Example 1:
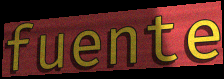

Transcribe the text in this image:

fuente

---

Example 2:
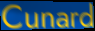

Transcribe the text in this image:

Cunard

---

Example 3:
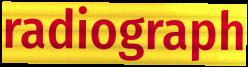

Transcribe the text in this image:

radiograph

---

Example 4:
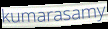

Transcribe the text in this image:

kumarasamy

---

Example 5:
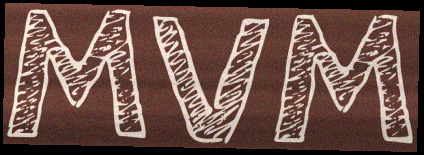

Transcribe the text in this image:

MVM